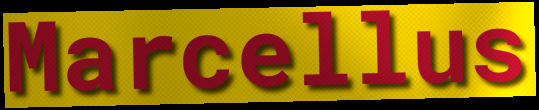
Marcellus